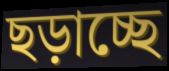
ছড়াচ্ছে